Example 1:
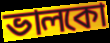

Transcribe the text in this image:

ভালকো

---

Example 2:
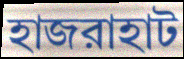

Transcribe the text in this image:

হাজরাহাট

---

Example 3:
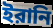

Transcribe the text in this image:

ইরানি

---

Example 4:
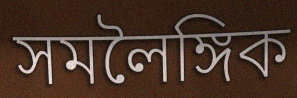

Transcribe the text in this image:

সমলৈঙ্গিক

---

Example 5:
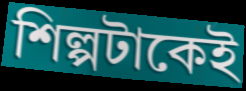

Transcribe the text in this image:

শিল্পটাকেই